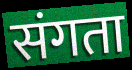
संगता